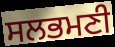
ਸਲਭਮਣੀ